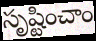
సృష్టించాం